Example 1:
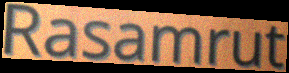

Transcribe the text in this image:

Rasamrut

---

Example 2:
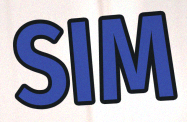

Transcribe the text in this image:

SIM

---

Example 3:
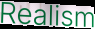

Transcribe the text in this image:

Realism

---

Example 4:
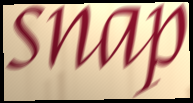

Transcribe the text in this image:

snap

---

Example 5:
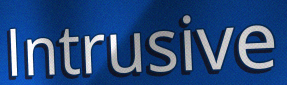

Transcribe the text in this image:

Intrusive